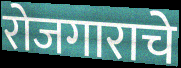
रोजगाराचे